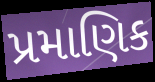
પ્રમાણિક